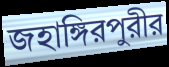
জহাঙ্গিরপুরীর